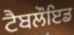
ਟੈਬਲੌਇਡ